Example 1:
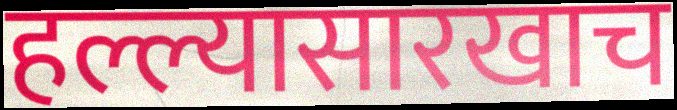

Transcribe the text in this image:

हल्ल्यासारखाच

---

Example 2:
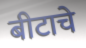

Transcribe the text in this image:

बीटाचे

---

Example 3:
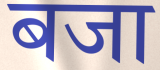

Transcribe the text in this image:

बजा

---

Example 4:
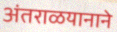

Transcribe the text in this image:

अंतराळयानाने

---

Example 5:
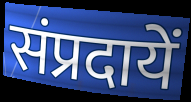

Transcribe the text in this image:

संप्रदायें